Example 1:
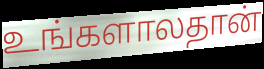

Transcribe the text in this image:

உங்களாலதான்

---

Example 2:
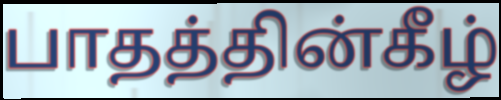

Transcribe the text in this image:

பாதத்தின்கீழ்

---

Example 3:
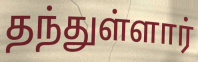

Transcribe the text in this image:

தந்துள்ளார்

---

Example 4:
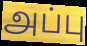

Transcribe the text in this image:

அப்பு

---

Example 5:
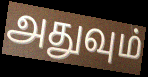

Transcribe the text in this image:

அதுவும்